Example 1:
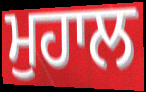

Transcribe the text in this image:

ਮੁਹਾਲ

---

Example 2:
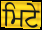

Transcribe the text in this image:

ਮਿਟੇ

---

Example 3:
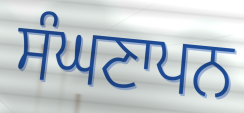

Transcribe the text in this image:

ਸੰਘਣਾਪਨ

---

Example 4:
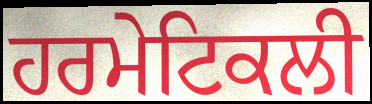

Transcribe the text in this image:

ਹਰਮੇਟਿਕਲੀ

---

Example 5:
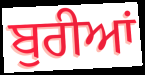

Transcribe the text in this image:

ਬੁਰੀਆਂ